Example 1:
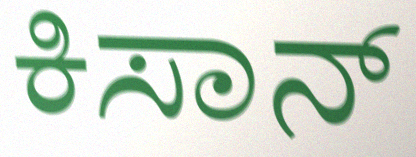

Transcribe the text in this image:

ಕಿಸಾನ್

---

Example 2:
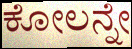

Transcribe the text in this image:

ಕೋಲನ್ನೇ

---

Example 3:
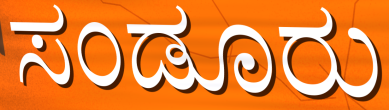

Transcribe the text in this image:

ಸಂಡೂರು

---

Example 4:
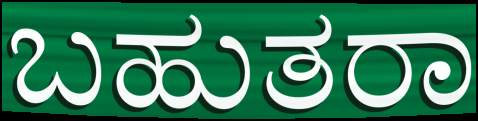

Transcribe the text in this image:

ಬಹುತರಾ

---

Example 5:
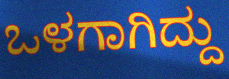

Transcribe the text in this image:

ಒಳಗಾಗಿದ್ದು